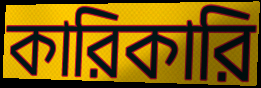
কারিকারি